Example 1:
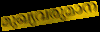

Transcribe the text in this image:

മുഖ്യവരുമാന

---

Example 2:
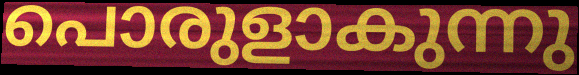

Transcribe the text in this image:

പൊരുളാകുന്നു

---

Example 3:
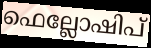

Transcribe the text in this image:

ഫെല്ലോഷിപ്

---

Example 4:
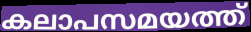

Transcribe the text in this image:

കലാപസമയത്ത്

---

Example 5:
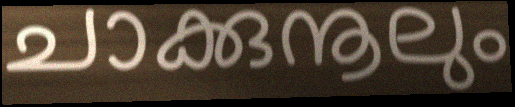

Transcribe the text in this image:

ചാക്കുനൂലും